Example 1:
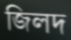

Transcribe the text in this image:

জিলদ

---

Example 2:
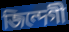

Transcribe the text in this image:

জিন্দেগী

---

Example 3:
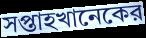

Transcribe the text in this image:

সপ্তাহখানেকের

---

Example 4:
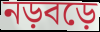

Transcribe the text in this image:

নড়বড়ে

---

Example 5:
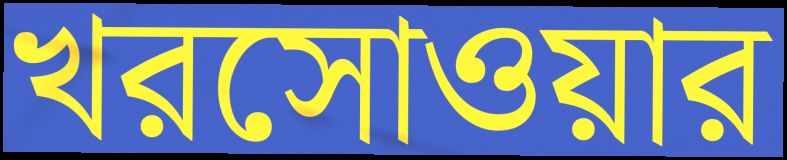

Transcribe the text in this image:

খরসোওয়ার